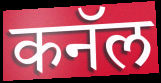
कनॅल